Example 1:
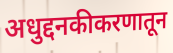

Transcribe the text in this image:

अधुद्दनकीकरणातून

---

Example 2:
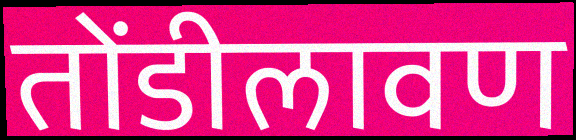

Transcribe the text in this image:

तोंडीलावण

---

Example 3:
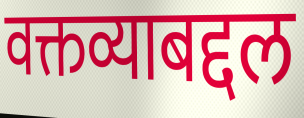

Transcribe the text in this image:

वक्तव्याबद्दल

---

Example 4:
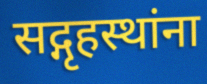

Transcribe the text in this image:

सद्गृहस्थांना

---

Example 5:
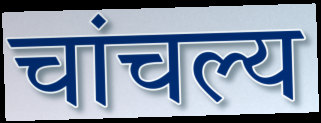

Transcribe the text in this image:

चांचल्य